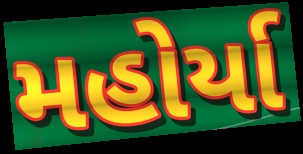
મહોર્યા